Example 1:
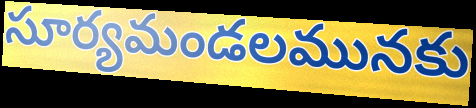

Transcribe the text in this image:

సూర్యమండలమునకు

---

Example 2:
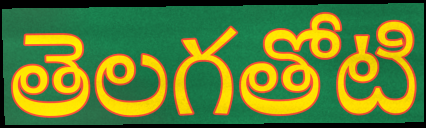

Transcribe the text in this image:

తెలగతోటి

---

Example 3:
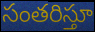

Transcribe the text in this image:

సంతరిస్తూ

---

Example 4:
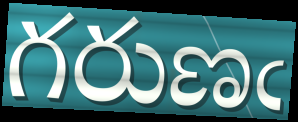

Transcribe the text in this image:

గరుణఁ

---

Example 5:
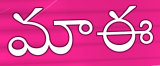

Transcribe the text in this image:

మాఈ